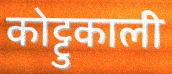
कोट्टुकाली